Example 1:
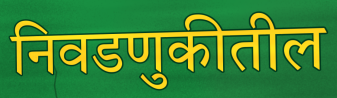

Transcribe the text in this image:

निवडणुकीतील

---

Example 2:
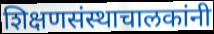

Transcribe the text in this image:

शिक्षणसंस्थाचालकांनी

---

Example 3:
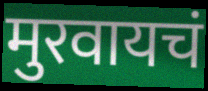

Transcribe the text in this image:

मुरवायचं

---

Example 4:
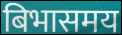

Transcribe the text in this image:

बिभासमय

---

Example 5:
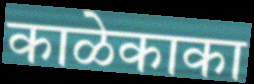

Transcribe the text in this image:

काळेकाका